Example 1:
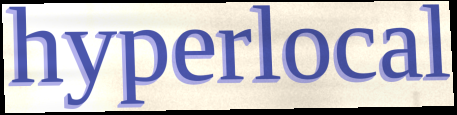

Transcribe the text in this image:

hyperlocal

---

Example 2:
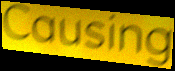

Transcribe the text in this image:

Causing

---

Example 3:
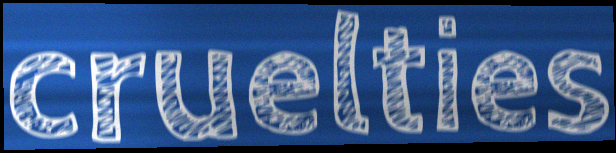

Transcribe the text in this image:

cruelties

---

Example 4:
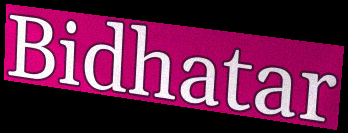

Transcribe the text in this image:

Bidhatar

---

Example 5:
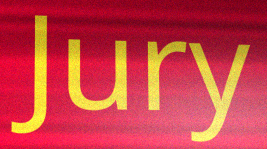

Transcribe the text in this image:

Jury